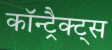
कॉन्‍ट्रैक्‍ट्स